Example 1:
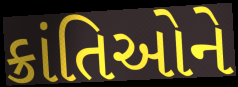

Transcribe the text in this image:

ક્રાંતિઓને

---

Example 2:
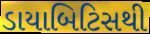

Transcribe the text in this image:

ડાયાબિટિસથી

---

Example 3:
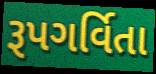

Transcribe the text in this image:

રૂપગર્વિતા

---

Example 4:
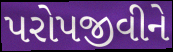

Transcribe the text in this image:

પરોપજીવીને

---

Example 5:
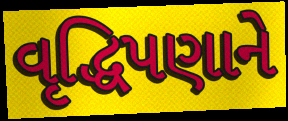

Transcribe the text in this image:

વૃદ્ધિપણાને